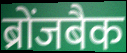
ब्रोंजबैक